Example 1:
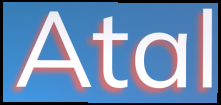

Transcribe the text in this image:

Atal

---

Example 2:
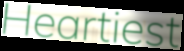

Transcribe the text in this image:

Heartiest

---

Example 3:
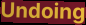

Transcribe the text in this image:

Undoing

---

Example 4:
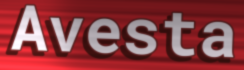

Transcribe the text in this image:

Avesta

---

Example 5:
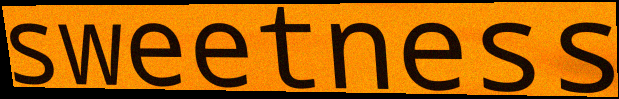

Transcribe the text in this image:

sweetness